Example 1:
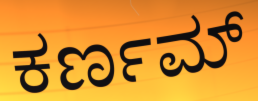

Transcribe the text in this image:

ಕರ್ಣಮ್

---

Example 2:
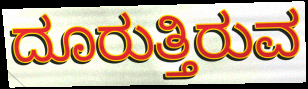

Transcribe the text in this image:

ದೂರುತ್ತಿರುವ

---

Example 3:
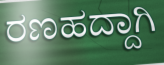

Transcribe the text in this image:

ರಣಹದ್ದಾಗಿ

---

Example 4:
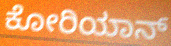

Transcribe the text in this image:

ಕೋರಿಯಾನ್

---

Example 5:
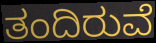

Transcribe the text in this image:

ತಂದಿರುವೆ